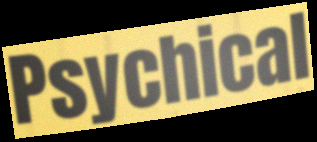
Psychical